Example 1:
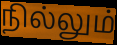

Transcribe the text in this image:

நில்லும்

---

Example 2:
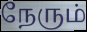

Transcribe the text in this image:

நேரும்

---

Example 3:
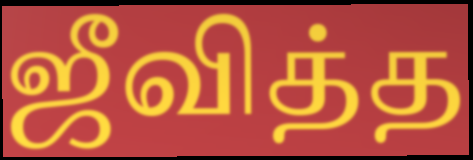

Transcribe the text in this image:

ஜீவித்த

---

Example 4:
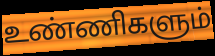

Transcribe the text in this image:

உண்ணிகளும்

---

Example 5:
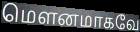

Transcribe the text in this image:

மெளனமாகவே